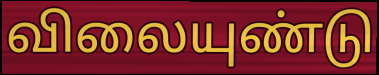
விலையுண்டு